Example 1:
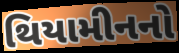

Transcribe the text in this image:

થિયામીનનો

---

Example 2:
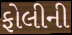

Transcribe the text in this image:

ફોલીની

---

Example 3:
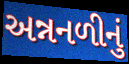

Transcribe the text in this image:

અન્નનળીનું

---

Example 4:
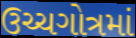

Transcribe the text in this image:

ઉચ્ચગોત્રમાં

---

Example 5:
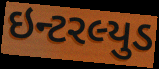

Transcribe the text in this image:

ઇન્ટરલ્યુડ